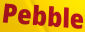
Pebble